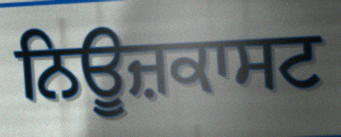
ਨਿਊਜ਼ਕਾਸਟ